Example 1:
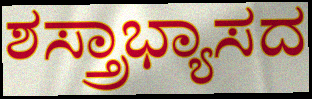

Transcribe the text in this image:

ಶಸ್ತ್ರಾಭ್ಯಾಸದ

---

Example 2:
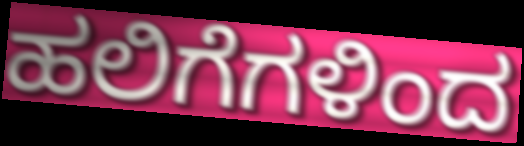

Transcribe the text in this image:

ಹಲಿಗೆಗಳಿಂದ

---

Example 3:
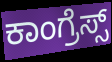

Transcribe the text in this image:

ಕಾಂಗ್ರೆಸ್ಸ್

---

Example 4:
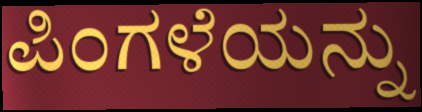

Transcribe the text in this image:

ಪಿಂಗಳೆಯನ್ನು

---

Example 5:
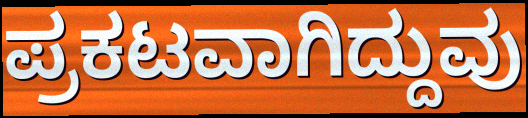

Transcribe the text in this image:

ಪ್ರಕಟವಾಗಿದ್ದುವು